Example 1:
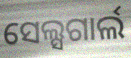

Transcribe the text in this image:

ସେଲ୍ସଗାର୍ଲ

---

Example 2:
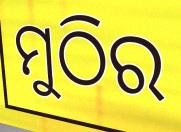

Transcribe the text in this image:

ମୁଠିର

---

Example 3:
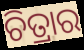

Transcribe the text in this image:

ଚିତ୍ରାର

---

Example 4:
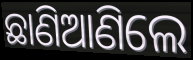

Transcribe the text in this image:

ଛାଣିଆଣିଲେ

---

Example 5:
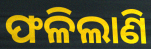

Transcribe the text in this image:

ଫଳିଲାଣି